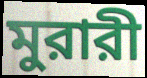
মুরারী